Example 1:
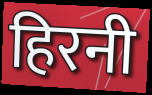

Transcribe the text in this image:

हिरनी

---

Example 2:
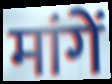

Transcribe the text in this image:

मांगें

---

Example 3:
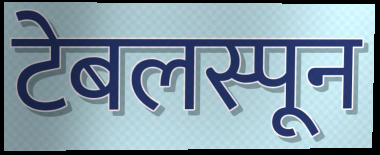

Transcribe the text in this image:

टेबलस्पून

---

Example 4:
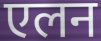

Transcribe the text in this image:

एलन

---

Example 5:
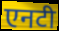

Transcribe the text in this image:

एनटी